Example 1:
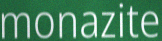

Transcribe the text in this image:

monazite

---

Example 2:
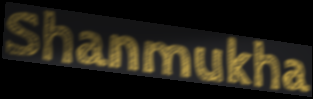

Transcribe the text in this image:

Shanmukha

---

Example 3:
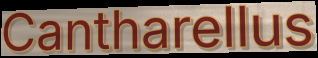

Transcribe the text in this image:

Cantharellus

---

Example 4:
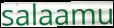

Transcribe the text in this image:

salaamu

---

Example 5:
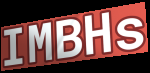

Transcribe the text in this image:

IMBHs